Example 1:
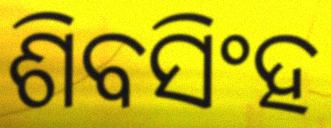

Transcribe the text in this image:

ଶିବସିଂହ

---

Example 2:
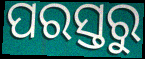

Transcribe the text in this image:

ପରସ୍ତରୁ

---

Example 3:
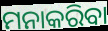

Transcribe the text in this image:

ମନାକରିବା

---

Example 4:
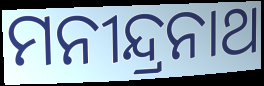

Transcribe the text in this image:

ମନୀନ୍ଦ୍ରନାଥ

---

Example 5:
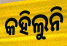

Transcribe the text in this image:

କହିଲୁନି